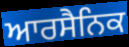
ਆਰਸੈਨਿਕ